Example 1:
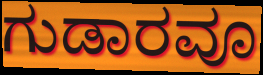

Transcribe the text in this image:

ಗುಡಾರವೂ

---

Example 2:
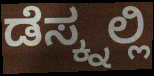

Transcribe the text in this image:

ಡೆಸ್ಕ್ನಲ್ಲಿ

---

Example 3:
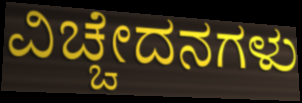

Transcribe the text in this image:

ವಿಚ್ಚೇದನಗಳು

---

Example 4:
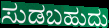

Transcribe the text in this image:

ಸುಡಬಹುದು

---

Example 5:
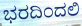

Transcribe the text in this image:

ಭರದಿಂದಲಿ